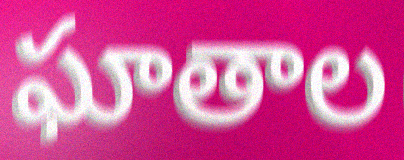
ఘాతాల